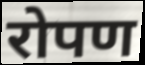
रोपण